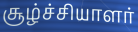
சூழ்ச்சியாளர்